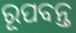
ରୂପବନ୍ତ